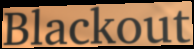
Blackout